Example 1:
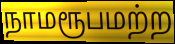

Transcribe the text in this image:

நாமரூபமற்ற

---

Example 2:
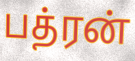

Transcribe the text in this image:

பத்ரன்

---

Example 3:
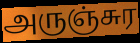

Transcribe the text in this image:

அருஞ்சுர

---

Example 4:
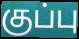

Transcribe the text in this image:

குப்பு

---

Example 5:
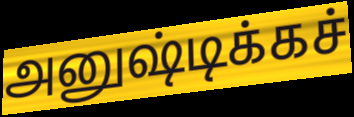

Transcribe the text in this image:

அனுஷ்டிக்கச்